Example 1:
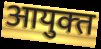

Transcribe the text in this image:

आयुक्‍त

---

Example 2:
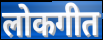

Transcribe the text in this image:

लोकगीत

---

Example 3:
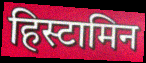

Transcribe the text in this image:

हिस्टामिन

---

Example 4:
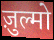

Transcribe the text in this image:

ज़ुल्मो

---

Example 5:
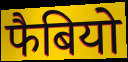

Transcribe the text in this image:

फैबियो